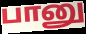
பானு